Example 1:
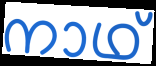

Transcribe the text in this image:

നാഥ്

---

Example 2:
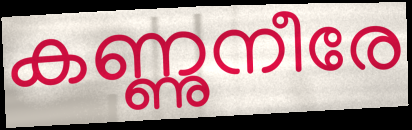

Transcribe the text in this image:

കണ്ണുനീരേ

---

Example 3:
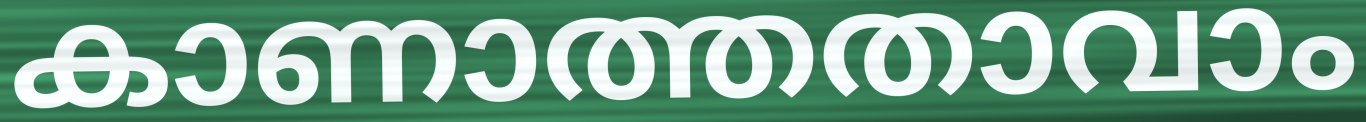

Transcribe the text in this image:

കാണാത്തതാവാം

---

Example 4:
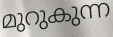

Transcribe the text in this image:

മുറുകുന്ന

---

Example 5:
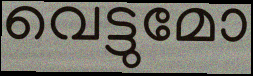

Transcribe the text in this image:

വെട്ടുമോ